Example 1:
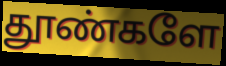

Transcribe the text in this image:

தூண்களே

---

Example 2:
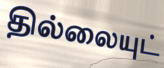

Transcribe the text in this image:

தில்லையுட்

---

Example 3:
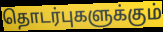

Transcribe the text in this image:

தொடர்புகளுக்கும்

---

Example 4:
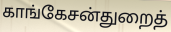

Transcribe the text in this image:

காங்கேசன்துறைத்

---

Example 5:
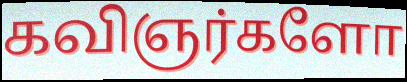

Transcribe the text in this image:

கவிஞர்களோ